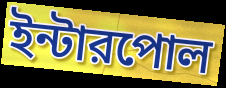
ইন্টারপোল